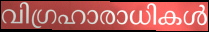
വിഗ്രഹാരാധികൾ